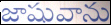
జాషువాను